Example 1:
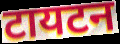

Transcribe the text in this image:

टायटन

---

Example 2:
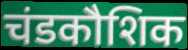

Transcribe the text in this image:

चंडकौशिक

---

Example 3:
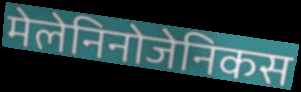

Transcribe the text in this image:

मेलेनिनोजेनिकस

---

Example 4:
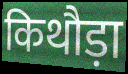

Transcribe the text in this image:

किथौड़ा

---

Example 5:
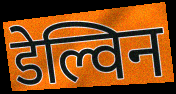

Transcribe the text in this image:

डेल्विन